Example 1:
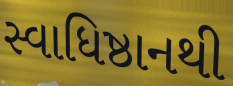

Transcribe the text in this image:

સ્વાધિષ્ઠાનથી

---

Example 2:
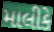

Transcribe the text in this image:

માલીકે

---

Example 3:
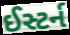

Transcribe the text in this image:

ઈસ્ટર્ન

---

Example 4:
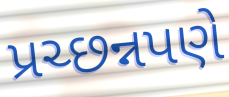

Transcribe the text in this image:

પ્રચ્છન્નપણે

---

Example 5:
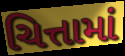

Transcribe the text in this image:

ચિત્તામાં